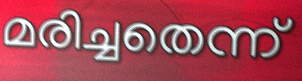
മരിച്ചതെന്ന്